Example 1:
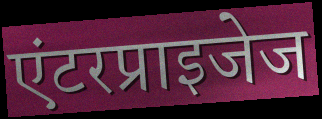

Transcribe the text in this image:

एंटरप्राइजेज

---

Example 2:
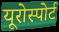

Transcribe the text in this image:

यूरोस्पोर्ट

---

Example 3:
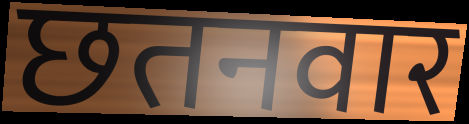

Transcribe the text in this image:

छतनवार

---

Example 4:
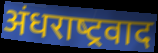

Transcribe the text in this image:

अंधराष्ट्रवाद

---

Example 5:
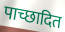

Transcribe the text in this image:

पाच्छादित